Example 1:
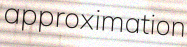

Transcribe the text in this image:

approximation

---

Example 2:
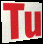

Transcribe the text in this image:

Tu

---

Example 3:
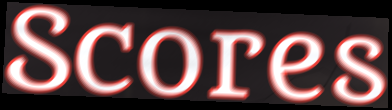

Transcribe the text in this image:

Scores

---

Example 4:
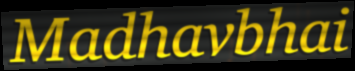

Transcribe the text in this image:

Madhavbhai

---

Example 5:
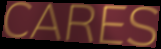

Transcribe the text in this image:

CARES